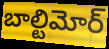
బాల్టిమోర్